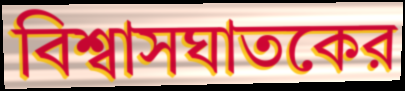
বিশ্বাসঘাতকের